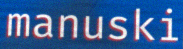
manuski